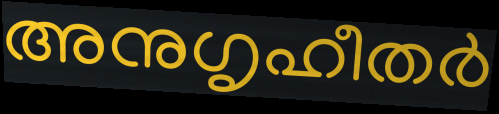
അനുഗൃഹീതർ